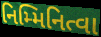
નિમ્મિનિત્વા